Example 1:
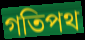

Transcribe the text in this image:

গতিপথ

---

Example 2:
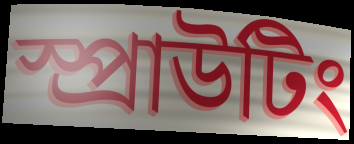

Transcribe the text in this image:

স্প্রাউটিং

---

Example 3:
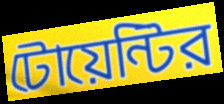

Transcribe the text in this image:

টোয়েন্টির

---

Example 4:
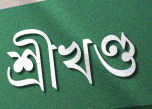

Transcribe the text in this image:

শ্রীখণ্ড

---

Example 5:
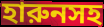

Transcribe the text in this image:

হারুনসহ